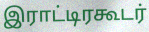
இராட்டிரகூடர்